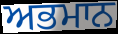
ਅਭਮਾਨ